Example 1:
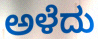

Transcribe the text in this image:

ಅಳೆದು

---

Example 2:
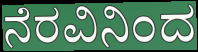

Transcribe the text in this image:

ನೆರವಿನಿಂದ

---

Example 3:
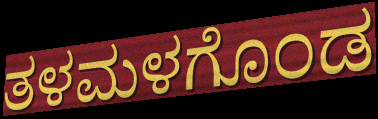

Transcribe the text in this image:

ತಳಮಳಗೊಂಡ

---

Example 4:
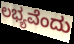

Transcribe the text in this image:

ಲಭ್ಯವೆಂದು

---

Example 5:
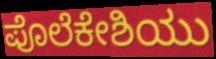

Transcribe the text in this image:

ಪೊಲೆಕೇಶಿಯು